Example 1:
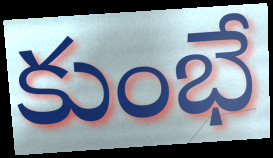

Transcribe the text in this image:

కుంభే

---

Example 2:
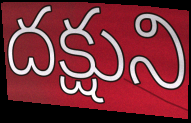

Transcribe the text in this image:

దక్షుని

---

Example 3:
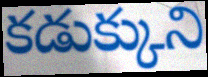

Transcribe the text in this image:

కడుక్కుని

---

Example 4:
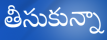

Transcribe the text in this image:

తీసుకున్నా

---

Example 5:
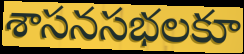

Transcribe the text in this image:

శాసనసభలకూ